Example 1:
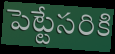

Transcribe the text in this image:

పెట్టేసరికి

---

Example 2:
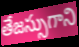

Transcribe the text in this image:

తేజస్సుగాని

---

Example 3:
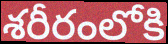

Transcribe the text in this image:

శరీరంలోకి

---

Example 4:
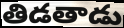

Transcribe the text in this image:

తిడతాడు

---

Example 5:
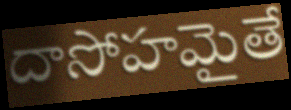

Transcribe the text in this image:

దాసోహమైతే